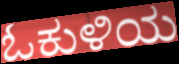
ಓಕುಳಿಯ